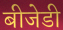
बीजेडी